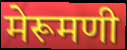
मेरूमणी